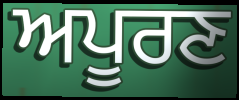
ਅਪੂਰਣ